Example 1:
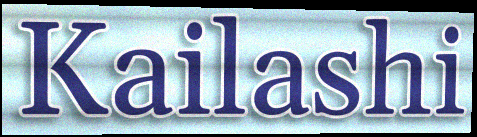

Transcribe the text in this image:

Kailashi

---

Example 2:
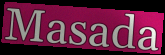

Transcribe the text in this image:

Masada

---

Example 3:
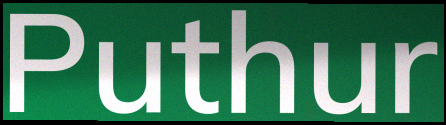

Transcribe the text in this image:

Puthur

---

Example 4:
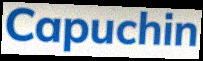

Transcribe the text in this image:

Capuchin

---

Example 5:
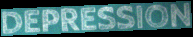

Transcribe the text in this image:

DEPRESSION